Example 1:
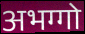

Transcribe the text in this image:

अभग्गो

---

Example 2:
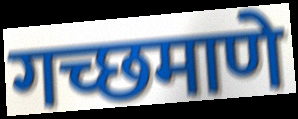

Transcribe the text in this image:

गच्छमाणे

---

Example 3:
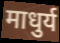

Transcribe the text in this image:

माधुर्य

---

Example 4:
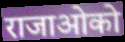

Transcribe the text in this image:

राजाओको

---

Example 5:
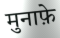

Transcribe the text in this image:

मुनाफ़े